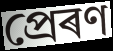
প্ৰেৰণ